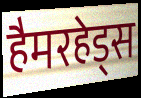
हैमरहेड्स